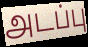
அடப்பு